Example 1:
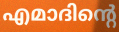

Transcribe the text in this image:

എമാദിന്റെ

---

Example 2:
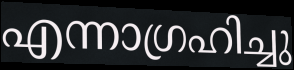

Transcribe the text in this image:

എന്നാഗ്രഹിച്ചു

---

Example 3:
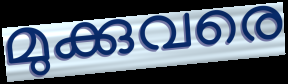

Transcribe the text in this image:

മുക്കുവരെ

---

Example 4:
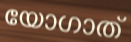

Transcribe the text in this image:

യോഗാത്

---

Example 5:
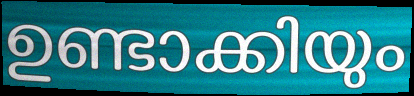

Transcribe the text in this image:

ഉണ്ടാക്കിയും